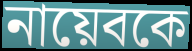
নায়েবকে